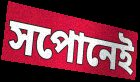
সপোনেই